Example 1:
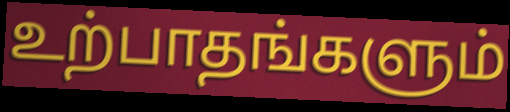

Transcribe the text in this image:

உற்பாதங்களும்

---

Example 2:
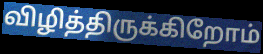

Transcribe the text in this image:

விழித்திருக்கிறோம்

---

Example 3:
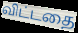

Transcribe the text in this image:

விட்டதை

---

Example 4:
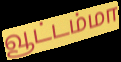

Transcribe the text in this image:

வூட்டம்மா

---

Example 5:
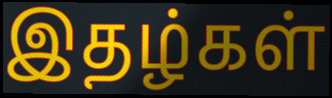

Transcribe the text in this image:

இதழ்கள்